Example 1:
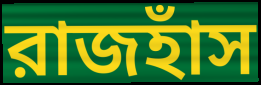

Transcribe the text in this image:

রাজহাঁস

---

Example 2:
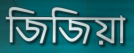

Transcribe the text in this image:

জিজিয়া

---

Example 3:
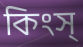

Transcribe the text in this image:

কিংস্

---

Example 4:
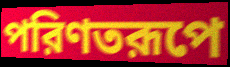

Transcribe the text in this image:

পরিণতরূপে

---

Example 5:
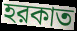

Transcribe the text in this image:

হরকাত